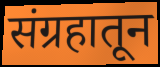
संग्रहातून